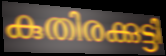
കുതിരക്കുട്ടി